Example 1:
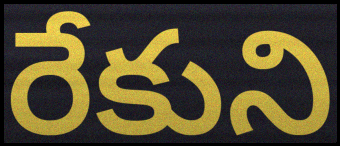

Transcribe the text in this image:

రేకుని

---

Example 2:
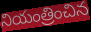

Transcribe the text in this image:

నియంత్రించిన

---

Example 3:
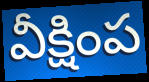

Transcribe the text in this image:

వీక్షింప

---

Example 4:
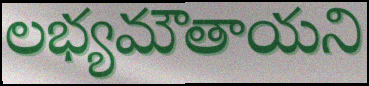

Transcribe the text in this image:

లభ్యమౌతాయని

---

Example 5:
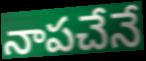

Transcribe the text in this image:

నాపచేనే